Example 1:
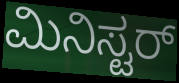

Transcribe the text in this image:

ಮಿನಿಸ್ಟರ್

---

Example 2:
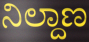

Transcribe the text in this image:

ನಿಲ್ದಾಣ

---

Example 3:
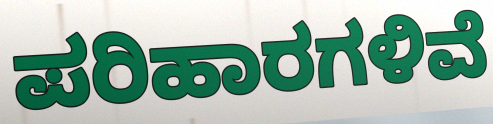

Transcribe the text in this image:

ಪರಿಹಾರಗಳಿವೆ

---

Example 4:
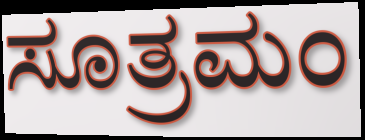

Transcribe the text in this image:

ಸೂತ್ರಮಂ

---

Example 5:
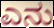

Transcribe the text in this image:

ಎನು